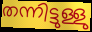
തന്നിട്ടുള്ളു